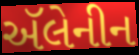
ઍલેનીન